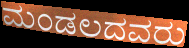
ಮಂಡಲದವರು